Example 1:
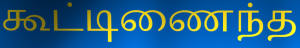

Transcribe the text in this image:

கூட்டிணைந்த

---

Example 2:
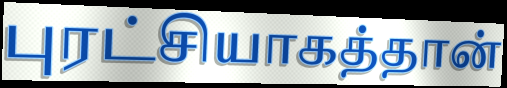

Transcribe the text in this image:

புரட்சியாகத்தான்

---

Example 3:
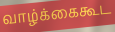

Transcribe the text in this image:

வாழ்க்கைகூட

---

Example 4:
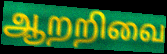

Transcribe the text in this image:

ஆறறிவை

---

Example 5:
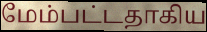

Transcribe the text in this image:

மேம்பட்டதாகிய